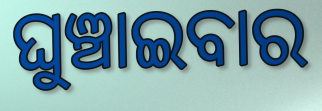
ଘୁଞ୍ଚାଇବାର